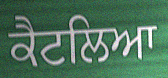
ਕੈਟਲਿਆ